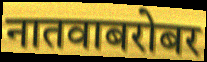
नातवाबरोबर